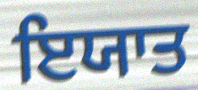
ਇਯਾਤ